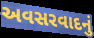
અવસરવાદનું